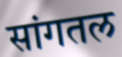
सांगतल